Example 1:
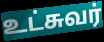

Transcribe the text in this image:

உட்சுவர்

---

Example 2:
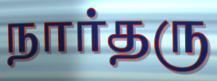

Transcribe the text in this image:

நார்தரு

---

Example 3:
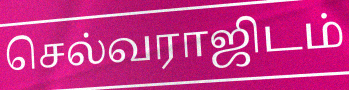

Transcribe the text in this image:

செல்வராஜிடம்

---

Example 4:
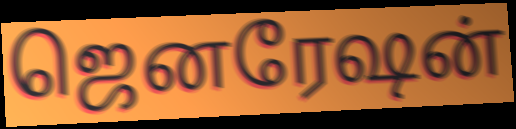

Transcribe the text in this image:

ஜெனரேஷன்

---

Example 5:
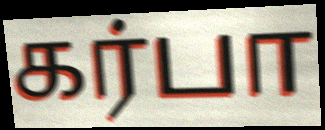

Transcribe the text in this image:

கர்பா